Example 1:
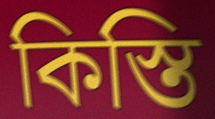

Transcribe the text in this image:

কিস্তি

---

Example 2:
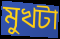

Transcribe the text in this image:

মুখটা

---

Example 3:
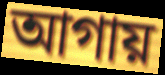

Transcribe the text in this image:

আগায়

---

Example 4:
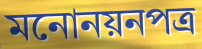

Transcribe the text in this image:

মনোনয়নপত্র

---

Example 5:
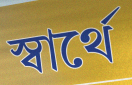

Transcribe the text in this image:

স্বার্থে